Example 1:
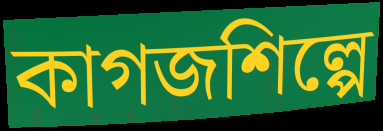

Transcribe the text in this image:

কাগজশিল্পে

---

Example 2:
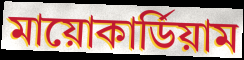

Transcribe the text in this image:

মায়োকার্ডিয়াম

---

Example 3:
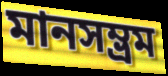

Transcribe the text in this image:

মানসম্ভ্রম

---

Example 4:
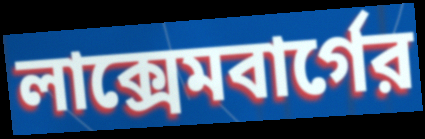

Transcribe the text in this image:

লাক্সেমবার্গের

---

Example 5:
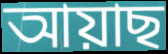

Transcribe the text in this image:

আয়াছ